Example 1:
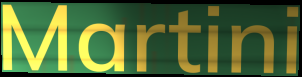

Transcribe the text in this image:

Martini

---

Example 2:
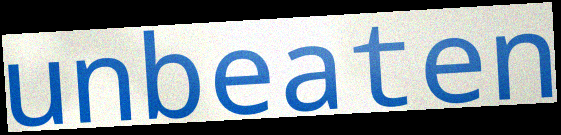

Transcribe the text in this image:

unbeaten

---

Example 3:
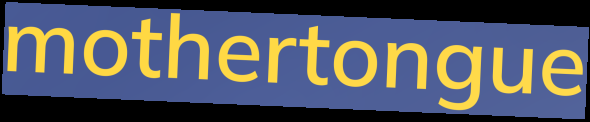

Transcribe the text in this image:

mothertongue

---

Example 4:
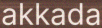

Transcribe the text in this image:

akkada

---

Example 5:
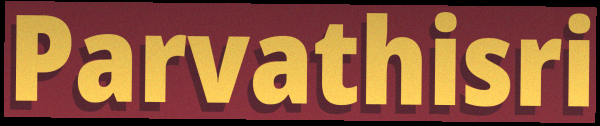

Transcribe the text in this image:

Parvathisri